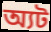
অ্যট